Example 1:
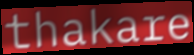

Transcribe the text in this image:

thakare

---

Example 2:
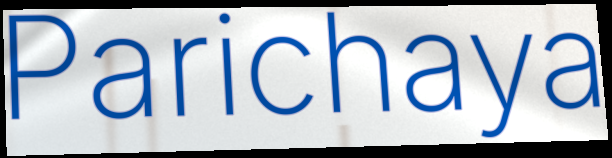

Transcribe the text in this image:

Parichaya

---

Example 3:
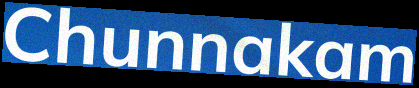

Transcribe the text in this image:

Chunnakam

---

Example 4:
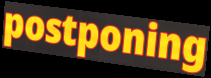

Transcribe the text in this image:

postponing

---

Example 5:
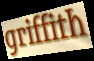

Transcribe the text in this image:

griffith